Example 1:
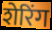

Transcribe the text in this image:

शेरिंग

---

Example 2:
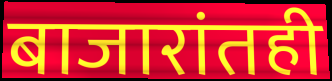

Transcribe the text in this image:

बाजारांतही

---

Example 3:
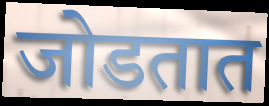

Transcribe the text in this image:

जोडतात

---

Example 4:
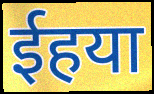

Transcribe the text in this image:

ईहया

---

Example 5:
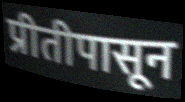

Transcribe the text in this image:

प्रीतीपासून